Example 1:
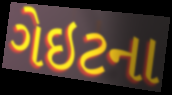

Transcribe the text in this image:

ગેઇટના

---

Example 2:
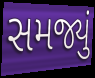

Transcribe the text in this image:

સમજ્યું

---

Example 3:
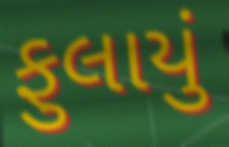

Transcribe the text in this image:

ફુલાયું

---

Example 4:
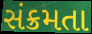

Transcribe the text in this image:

સંક્રમતા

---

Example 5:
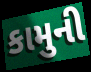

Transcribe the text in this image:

કામુની